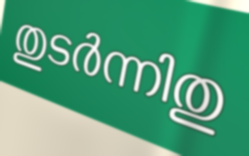
തുടർന്നിതു